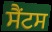
ਸੈਂਟਸ